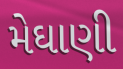
મેઘાણી